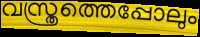
വസ്ത്രത്തെപ്പോലും